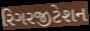
રિગરજીટેશન